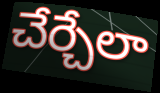
చేర్చేలా